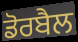
ਡੋਰਬੈਲ